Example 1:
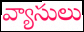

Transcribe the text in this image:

వ్యాసులు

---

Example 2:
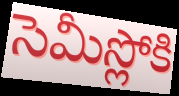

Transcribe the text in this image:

సెమీస్లోకి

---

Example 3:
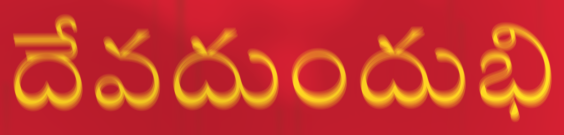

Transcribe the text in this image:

దేవదుందుభి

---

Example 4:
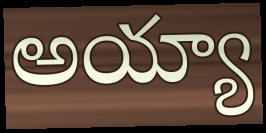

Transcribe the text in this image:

అయ్యా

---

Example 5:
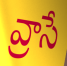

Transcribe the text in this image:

వ్రాసే